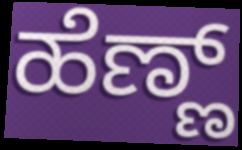
ಹೆಣ್ಣ್